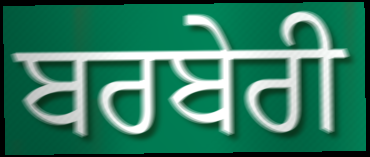
ਬਰਬੇਰੀ